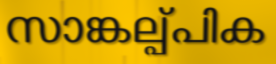
സാങ്കല്പ്പിക